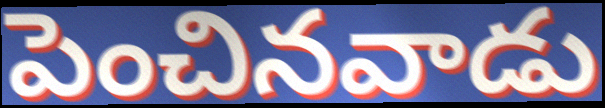
పెంచినవాడు